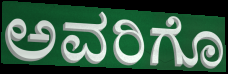
ಅವರಿಗೊ